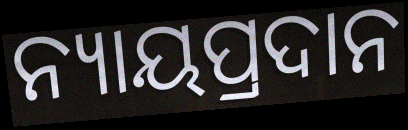
ନ୍ୟାୟପ୍ରଦାନ